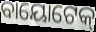
ବାୟୋଟେକ୍